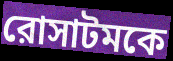
রোসাটমকে